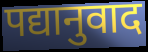
पद्यानुवाद